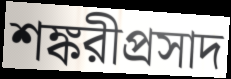
শঙ্করীপ্রসাদ